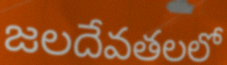
జలదేవతలలో